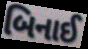
બિનાઈ